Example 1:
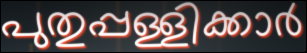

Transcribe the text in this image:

പുതുപ്പള്ളിക്കാർ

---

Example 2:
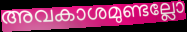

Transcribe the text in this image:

അവകാശമുണ്ടല്ലോ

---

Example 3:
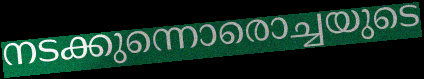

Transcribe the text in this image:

നടക്കുന്നൊരൊച്ചയുടെ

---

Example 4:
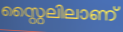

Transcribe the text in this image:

സ്റ്റൈലിലാണ്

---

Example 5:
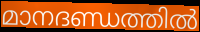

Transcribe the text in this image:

മാനദണ്ഡത്തിൽ